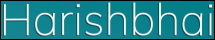
Harishbhai